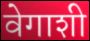
वेगाशी